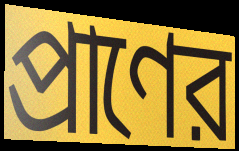
প্রাণের